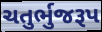
ચતુર્ભુજરૂપ